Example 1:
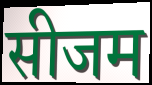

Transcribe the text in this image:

सीजम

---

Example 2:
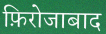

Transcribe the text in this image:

फ़िरोजाबाद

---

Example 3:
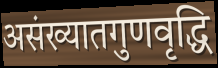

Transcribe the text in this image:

असंख्यातगुणवृद्धि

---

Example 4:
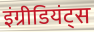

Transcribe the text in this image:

इंग्रीडियंट्स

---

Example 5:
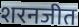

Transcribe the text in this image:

शरनजीत